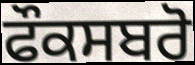
ਫੌਕਸਬਰੋ